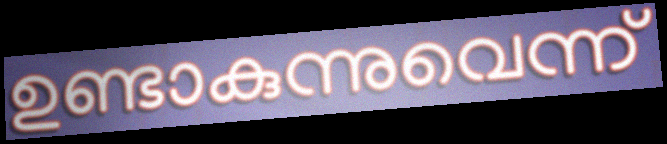
ഉണ്ടാകുന്നുവെന്ന്